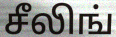
சீலிங்